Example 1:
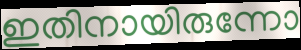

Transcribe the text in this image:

ഇതിനായിരുന്നോ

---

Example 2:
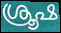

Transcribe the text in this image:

ശ്രൂഷ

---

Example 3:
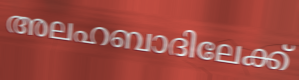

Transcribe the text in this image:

അലഹബാദിലേക്ക്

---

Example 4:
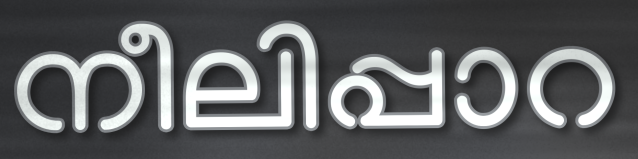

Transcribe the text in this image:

നീലിപ്പാറ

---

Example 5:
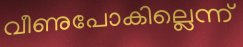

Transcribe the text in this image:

വീണുപോകില്ലെന്ന്